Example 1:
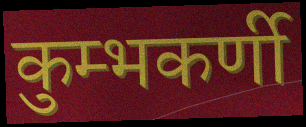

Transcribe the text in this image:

कुम्भकर्णी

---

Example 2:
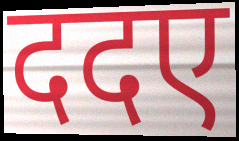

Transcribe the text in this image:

ददए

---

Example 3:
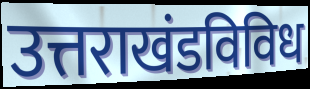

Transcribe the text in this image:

उत्तराखंडविविध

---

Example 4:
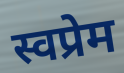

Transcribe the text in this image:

स्वप्रेम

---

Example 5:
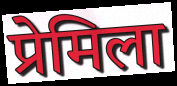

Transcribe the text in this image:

प्रेमिला